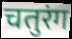
चतुरंग